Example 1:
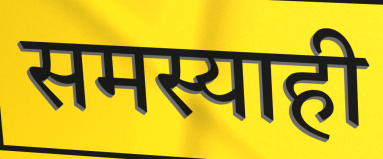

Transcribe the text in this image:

समस्याही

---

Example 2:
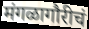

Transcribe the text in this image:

मंगळागौरीचं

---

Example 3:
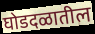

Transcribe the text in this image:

घोडदळातील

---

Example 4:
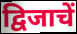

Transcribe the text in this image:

द्विजाचें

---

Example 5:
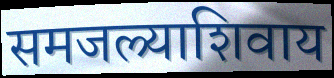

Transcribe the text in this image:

समजल्याशिवाय